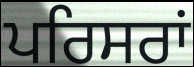
ਪਰਿਸਰਾਂ